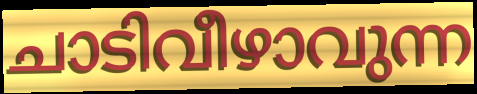
ചാടിവീഴാവുന്ന